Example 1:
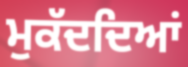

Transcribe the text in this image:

ਮੁਕੱਦਦਿਆਂ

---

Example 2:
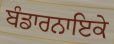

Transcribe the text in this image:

ਬੰਡਾਰਨਾਇਕੇ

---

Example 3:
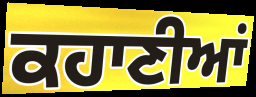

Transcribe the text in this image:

ਕਹਾਣੀਆਂ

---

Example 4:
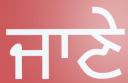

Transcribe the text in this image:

ਜਾਣੇ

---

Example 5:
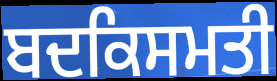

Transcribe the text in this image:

ਬਦਕਿਸਮਤੀ